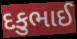
દકુભાઈ